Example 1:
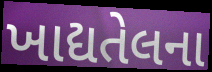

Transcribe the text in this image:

ખાદ્યતેલના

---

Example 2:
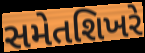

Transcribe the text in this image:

સમેતશિખરે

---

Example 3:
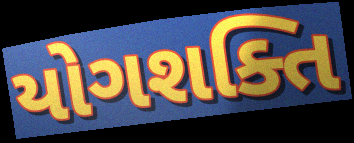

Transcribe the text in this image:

યોગશક્તિ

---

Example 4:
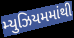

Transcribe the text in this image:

મ્યુઝિયમમાંથી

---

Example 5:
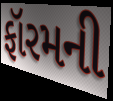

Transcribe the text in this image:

ફૉરમની